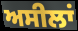
ਅਸੀਲਾਂ